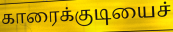
காரைக்குடியைச்